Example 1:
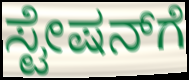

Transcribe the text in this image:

ಸ್ಟೇಷನ್‌ಗೆ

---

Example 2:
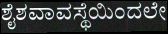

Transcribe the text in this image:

ಶೈಶವಾವಸ್ಥೆಯಿಂದಲೇ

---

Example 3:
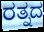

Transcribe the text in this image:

ರತ್ನದ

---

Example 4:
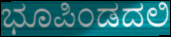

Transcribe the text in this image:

ಭೂಪಿಂಡದಲಿ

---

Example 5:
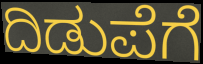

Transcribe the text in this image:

ದಿಡುಪೆಗೆ